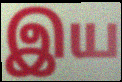
இய